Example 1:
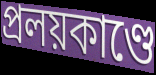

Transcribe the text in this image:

প্রলয়কাণ্ডে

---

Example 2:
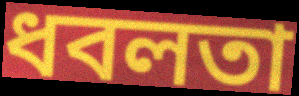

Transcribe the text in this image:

ধবলতা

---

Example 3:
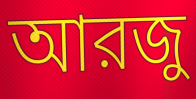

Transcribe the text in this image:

আরজু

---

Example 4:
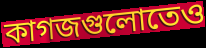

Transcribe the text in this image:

কাগজগুলোতেও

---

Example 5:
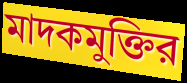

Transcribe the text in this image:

মাদকমুক্তির